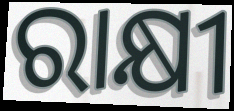
ରାକ୍ଷୀ